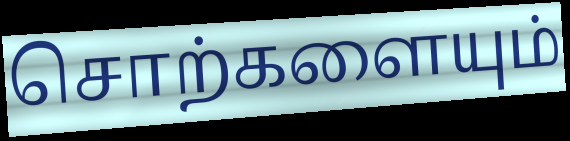
சொற்களையும்